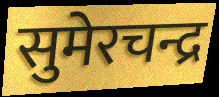
सुमेरचन्द्र